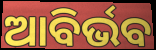
ଆବିର୍ଭବ